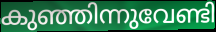
കുഞ്ഞിന്നുവേണ്ടി